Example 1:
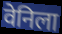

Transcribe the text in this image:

वेनिला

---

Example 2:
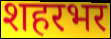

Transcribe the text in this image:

शहरभर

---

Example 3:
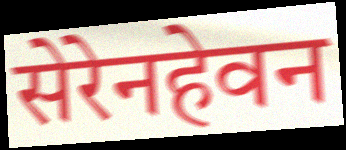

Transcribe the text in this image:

सेरेनहेवन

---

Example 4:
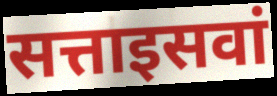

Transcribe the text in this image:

सत्ताइसवां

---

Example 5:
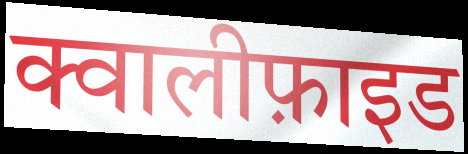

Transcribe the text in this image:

क्वालीफ़ाइड